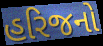
હરિજનો